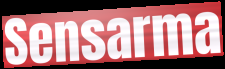
Sensarma